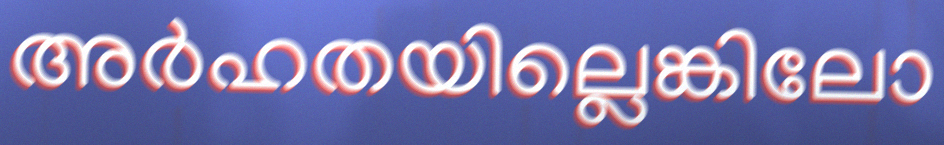
അർഹതയില്ലെങ്കിലോ